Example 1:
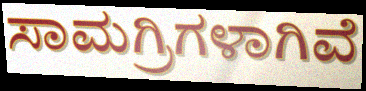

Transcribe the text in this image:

ಸಾಮಗ್ರಿಗಳಾಗಿವೆ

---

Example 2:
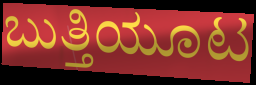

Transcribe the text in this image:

ಬುತ್ತಿಯೂಟ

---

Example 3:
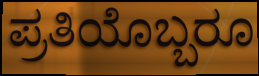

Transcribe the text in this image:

ಪ್ರತಿಯೊಬ್ಬರೂ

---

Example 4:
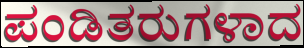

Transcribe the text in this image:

ಪಂಡಿತರುಗಳಾದ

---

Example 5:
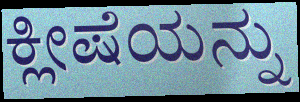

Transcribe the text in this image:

ಕ್ಲೀಷೆಯನ್ನು